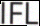
IFL